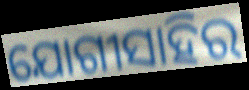
ଯୋଗୀସାହିର